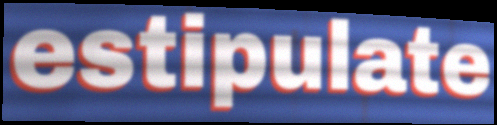
estipulate